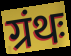
ग्रंथः